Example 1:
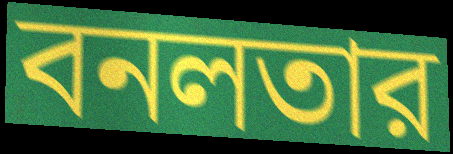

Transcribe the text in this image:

বনলতার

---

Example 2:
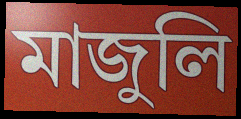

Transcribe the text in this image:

মাজুলি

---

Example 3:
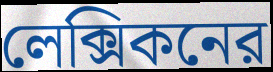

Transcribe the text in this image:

লেক্সিকনের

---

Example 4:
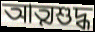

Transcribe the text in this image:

আত্মশুদ্ধ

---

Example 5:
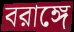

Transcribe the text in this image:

বরাঙ্গে